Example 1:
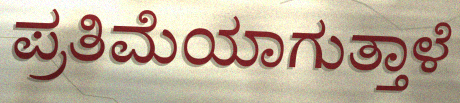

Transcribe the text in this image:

ಪ್ರತಿಮೆಯಾಗುತ್ತಾಳೆ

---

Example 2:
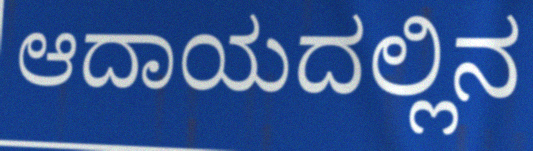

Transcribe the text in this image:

ಆದಾಯದಲ್ಲಿನ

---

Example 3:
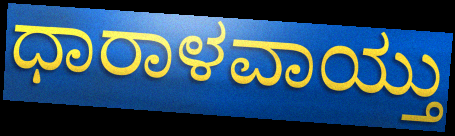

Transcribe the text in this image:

ಧಾರಾಳವಾಯ್ತು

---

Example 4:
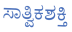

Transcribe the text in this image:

ಸಾತ್ವಿಕಶಕ್ತಿ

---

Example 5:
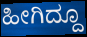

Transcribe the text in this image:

ಹೀಗಿದ್ದೂ